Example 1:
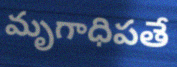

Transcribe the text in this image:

మృగాధిపతే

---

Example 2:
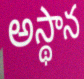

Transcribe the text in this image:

అస్థాన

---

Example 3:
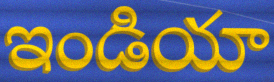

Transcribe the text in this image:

ఇండియా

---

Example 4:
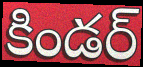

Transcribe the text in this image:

కిండర్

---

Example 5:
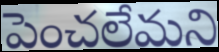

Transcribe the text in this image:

పెంచలేమని